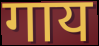
गाय